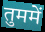
तुममें